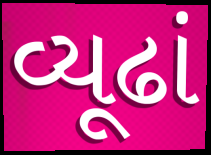
વ્યૂઢાં